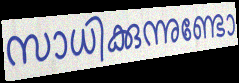
സാധിക്കുന്നുണ്ടോ